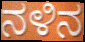
ನಳಿನ